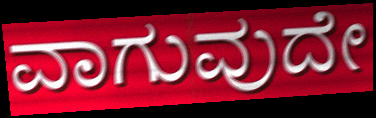
ವಾಗುವುದೇ